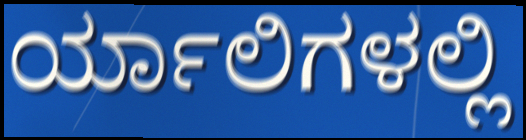
ರ್ಯಾಲಿಗಳಲ್ಲಿ